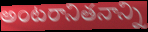
అంటరానితనాన్ని